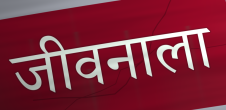
जीवनाला